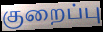
குறைப்பு